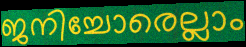
ജനിച്ചോരെല്ലാം